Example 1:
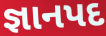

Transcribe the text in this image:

જ્ઞાનપદ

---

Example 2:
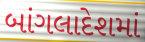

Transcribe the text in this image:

બાંગલાદેશમાં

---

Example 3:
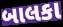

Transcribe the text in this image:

બાલકા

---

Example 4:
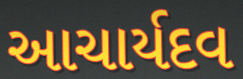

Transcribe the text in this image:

આચાર્યદવ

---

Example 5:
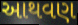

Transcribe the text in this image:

આથવણ